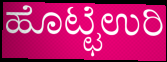
ಹೊಟ್ಟೆಉರಿ